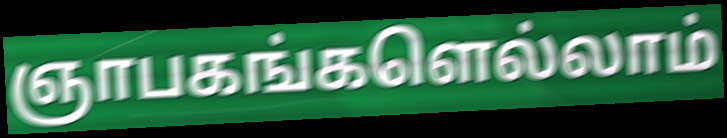
ஞாபகங்களெல்லாம்